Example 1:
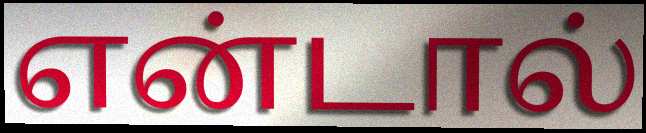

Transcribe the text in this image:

என்டால்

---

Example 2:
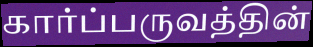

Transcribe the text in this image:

கார்ப்பருவத்தின்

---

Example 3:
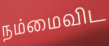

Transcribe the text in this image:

நம்மைவிட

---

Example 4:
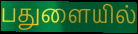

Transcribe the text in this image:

பதுளையில்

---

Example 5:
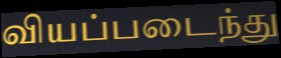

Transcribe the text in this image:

வியப்படைந்து